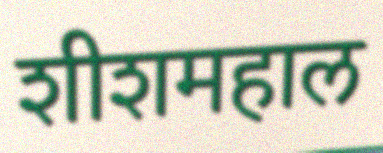
शीशमहाल